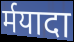
र्मयादा